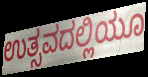
ಉತ್ಸವದಲ್ಲಿಯೂ